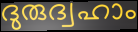
ദുരുദ്വഹാം